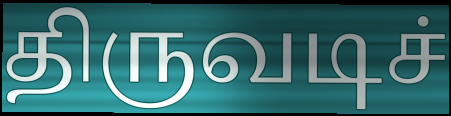
திருவடிச்